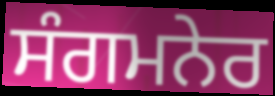
ਸੰਗਮਨੇਰ